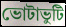
ভোটাভুটি